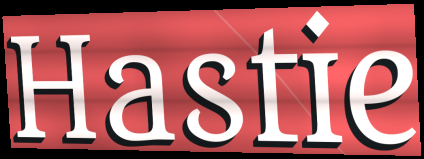
Hastie